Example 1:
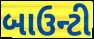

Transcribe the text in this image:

બાઉન્ટી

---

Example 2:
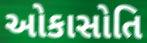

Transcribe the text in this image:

ઓકાસોતિ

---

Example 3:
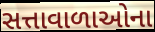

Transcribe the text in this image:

સત્તાવાળાઓના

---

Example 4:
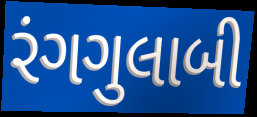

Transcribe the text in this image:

રંગગુલાબી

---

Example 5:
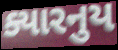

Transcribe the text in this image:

ક્યારનુય